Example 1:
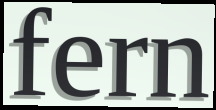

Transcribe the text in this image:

fern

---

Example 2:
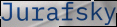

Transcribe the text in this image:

Jurafsky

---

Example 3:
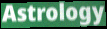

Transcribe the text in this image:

Astrology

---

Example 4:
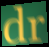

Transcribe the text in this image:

dr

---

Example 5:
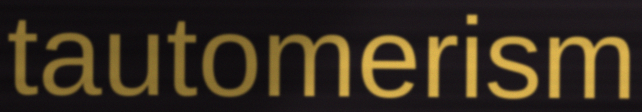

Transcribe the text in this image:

tautomerism